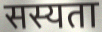
सस्यता